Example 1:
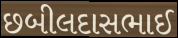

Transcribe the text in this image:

છબીલદાસભાઈ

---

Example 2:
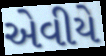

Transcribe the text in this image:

એવીયે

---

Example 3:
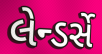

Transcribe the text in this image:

લેન્ડર્સે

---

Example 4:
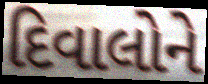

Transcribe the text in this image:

દિવાલોને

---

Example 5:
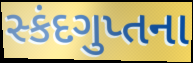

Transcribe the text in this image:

સ્કંદગુપ્તના